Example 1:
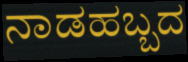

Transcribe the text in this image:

ನಾಡಹಬ್ಬದ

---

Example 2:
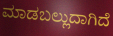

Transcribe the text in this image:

ಮಾಡಬಲ್ಲುದಾಗಿದೆ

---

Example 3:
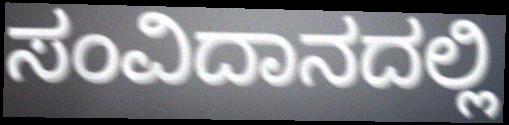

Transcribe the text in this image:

ಸಂವಿದಾನದಲ್ಲಿ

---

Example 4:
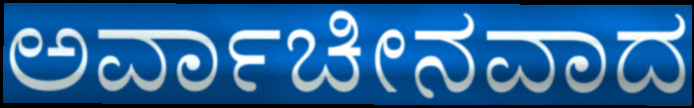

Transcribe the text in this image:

ಅರ್ವಾಚೀನವಾದ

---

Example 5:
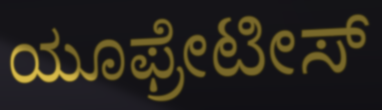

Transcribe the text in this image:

ಯೂಫ್ರೇಟೀಸ್